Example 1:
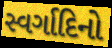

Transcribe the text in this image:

સ્વર્ગાદિનો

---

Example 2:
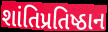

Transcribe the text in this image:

શાંતિપ્રતિષ્ઠાન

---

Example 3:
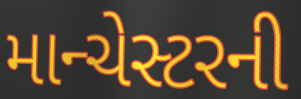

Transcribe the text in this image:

માન્ચેસ્ટરની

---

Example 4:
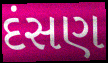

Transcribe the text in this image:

દંસણ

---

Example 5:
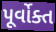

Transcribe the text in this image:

પૂર્વોક્ત